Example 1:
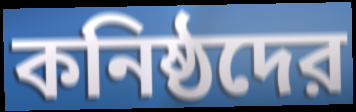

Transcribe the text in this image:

কনিষ্ঠদের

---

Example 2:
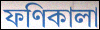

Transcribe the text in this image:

ফণিকালা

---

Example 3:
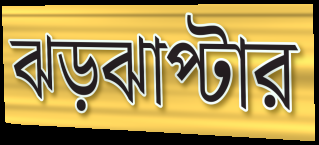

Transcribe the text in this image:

ঝড়ঝাপ্টার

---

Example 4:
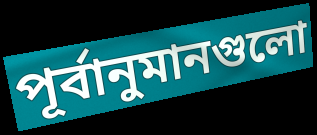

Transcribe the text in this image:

পূর্বানুমানগুলো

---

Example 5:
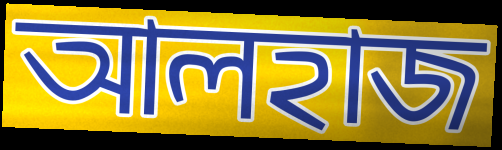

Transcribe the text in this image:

আলহাজ